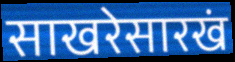
साखरेसारखं